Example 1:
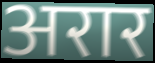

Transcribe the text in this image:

अरार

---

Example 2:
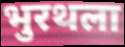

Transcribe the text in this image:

भुरथला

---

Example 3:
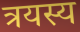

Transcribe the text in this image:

त्रयस्य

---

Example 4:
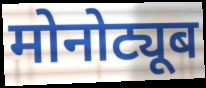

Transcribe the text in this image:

मोनोट्यूब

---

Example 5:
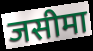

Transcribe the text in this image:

जसीमा